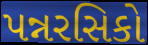
પન્નરસિકો